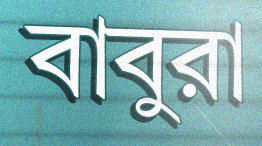
বাবুরা